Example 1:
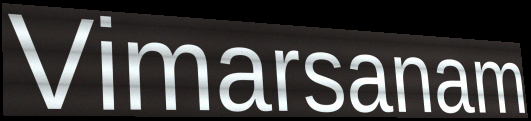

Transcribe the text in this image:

Vimarsanam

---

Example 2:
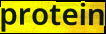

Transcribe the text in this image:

protein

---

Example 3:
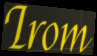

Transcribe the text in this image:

Irom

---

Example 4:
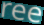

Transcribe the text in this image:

ree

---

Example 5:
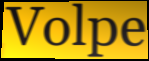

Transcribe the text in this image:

Volpe